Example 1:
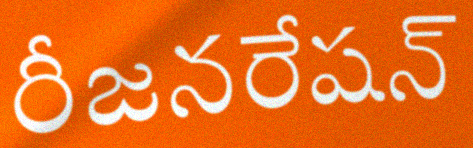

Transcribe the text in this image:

రీజనరేషన్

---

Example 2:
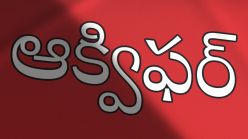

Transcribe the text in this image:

ఆక్విఫర్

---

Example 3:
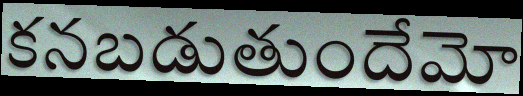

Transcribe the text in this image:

కనబడుతుందేమో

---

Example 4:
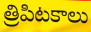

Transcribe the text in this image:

త్రిపిటకాలు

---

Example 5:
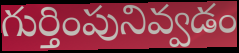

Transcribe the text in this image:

గుర్తింపునివ్వడం